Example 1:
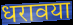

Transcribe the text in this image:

धरावया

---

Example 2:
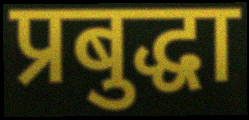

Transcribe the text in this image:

प्रबुद्धा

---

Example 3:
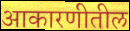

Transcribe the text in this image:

आकारणीतील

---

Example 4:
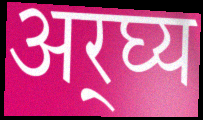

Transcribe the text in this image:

अर्घ्य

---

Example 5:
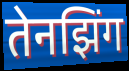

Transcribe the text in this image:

तेनझिंग